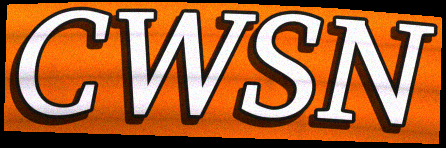
CWSN